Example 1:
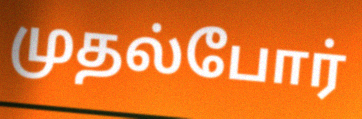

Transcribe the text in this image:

முதல்போர்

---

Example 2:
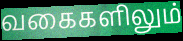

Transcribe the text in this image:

வகைகளிலும்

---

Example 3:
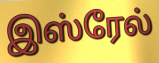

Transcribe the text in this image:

இஸ்ரேல்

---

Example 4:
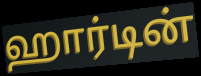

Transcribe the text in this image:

ஹார்டின்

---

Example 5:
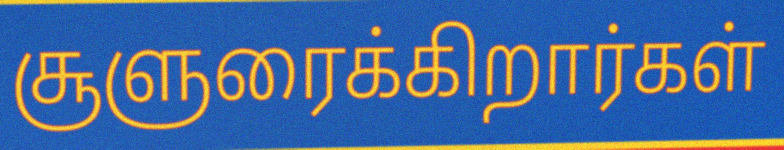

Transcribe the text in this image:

சூளுரைக்கிறார்கள்